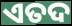
ଏତଦ